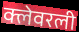
क्लेवरली